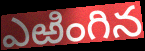
ఎఱింగిన